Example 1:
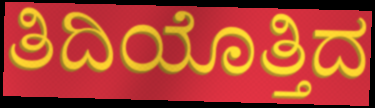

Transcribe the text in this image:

ತಿದಿಯೊತ್ತಿದ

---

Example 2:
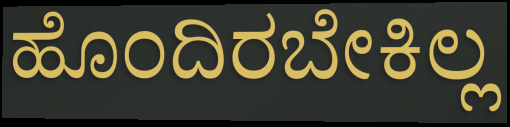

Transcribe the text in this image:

ಹೊಂದಿರಬೇಕಿಲ್ಲ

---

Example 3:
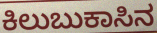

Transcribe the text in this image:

ಕಿಲುಬುಕಾಸಿನ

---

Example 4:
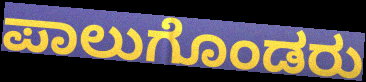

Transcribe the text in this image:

ಪಾಲುಗೊಂಡರು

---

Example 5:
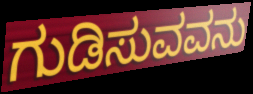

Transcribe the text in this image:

ಗುಡಿಸುವವನು